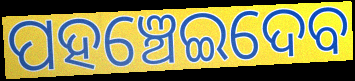
ପହଞ୍ଚେଇଦେବ